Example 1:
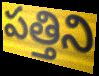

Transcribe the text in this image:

పత్తిని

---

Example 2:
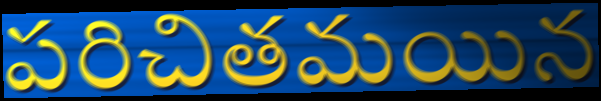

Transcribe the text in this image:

పరిచితమయిన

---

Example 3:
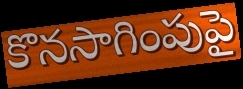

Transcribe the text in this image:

కొనసాగింపుపై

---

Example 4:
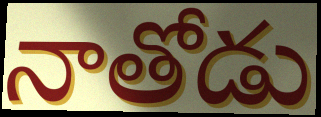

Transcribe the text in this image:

నాతోడు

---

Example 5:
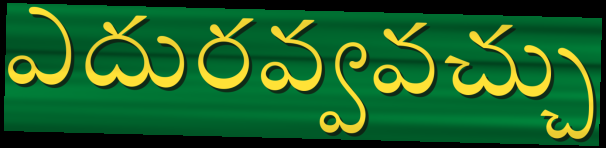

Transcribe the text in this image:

ఎదురవ్వవచ్చు